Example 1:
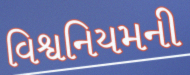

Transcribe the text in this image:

વિશ્વનિયમની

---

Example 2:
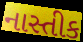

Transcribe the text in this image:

નાસ્તીક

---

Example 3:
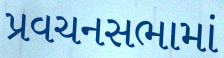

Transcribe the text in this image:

પ્રવચનસભામાં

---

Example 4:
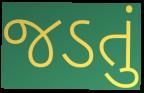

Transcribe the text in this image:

જડતું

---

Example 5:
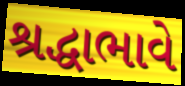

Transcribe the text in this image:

શ્રદ્ધાભાવે